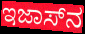
ಇಜಾಸ್‌ನ